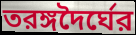
তরঙ্গদৈর্ঘের